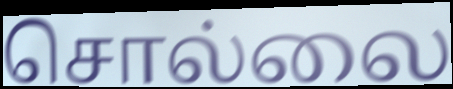
சொல்லை